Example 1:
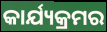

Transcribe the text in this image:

କାର୍ଯ୍ୟକ୍ରମର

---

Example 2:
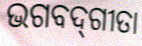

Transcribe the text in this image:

ଭଗବଦ୍‍ଗୀତା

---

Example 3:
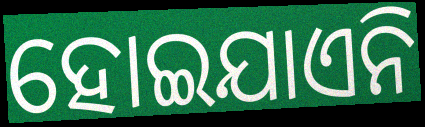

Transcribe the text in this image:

ହୋଇଯାଏନି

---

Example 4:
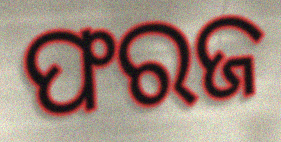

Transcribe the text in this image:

ଫରଜ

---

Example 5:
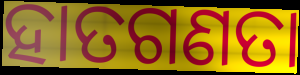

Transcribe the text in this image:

ହାତଗଣତା